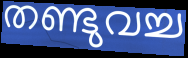
തണ്ടുവച്ച